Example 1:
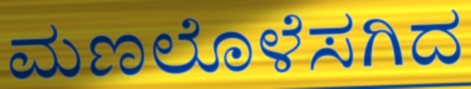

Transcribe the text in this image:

ಮಣಲೊಳೆಸಗಿದ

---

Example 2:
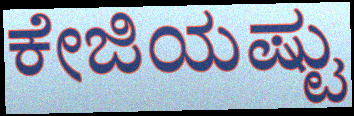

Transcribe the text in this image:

ಕೇಜಿಯಷ್ಟು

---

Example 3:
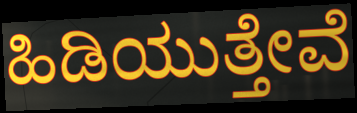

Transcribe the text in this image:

ಹಿಡಿಯುತ್ತೇವೆ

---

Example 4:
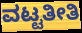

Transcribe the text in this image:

ವಟ್ಟತೀತಿ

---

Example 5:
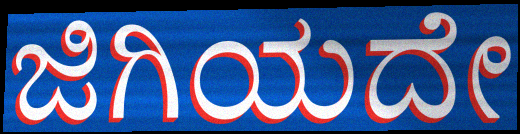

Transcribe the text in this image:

ಜಿಗಿಯದೇ